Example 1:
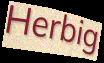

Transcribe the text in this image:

Herbig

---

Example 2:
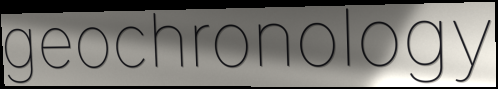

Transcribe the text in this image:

geochronology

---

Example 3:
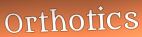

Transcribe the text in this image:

Orthotics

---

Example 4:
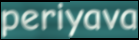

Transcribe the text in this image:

periyava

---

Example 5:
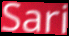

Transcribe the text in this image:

Sari